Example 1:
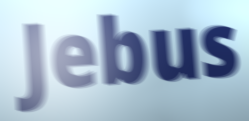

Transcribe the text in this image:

Jebus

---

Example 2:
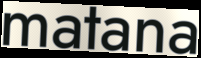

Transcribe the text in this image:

matana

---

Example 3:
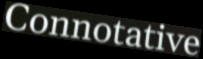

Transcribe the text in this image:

Connotative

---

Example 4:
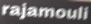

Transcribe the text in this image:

rajamouli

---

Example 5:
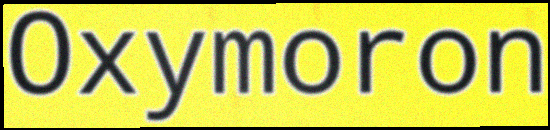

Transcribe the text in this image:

Oxymoron